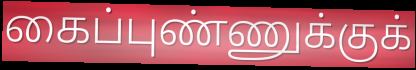
கைப்புண்ணுக்குக்